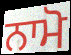
ਨਾਮੋ